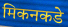
मिकनकडे